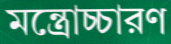
মন্ত্রোচ্চারণ